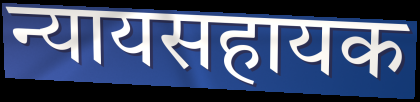
न्यायसहायक